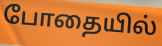
போதையில்